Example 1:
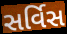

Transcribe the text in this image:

સર્વિસ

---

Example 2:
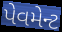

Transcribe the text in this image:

પેવમેન્ટ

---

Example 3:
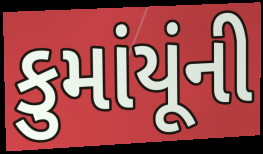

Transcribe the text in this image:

કુમાંયૂંની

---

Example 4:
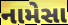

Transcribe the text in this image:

નામેસા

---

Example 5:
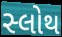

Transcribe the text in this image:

સ્લોથ